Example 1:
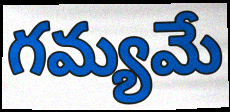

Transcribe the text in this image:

గమ్యమే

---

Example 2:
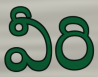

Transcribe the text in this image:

వీరి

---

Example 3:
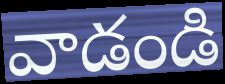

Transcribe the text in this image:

వాడండి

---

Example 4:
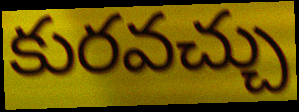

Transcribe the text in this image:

కురవచ్చు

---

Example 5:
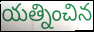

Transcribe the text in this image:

యత్నించిన